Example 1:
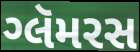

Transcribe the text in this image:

ગ્લૅમરસ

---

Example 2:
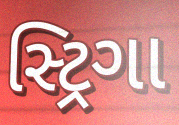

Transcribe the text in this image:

સ્ટ્રિગા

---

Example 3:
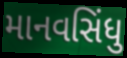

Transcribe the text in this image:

માનવસિંધુ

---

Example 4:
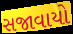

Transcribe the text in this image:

સજાવાયો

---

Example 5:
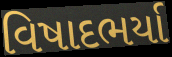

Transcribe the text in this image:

વિષાદભર્યા